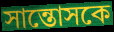
সান্তোসকে